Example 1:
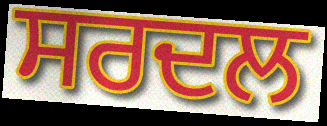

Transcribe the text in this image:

ਸਰਦਲ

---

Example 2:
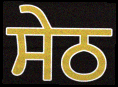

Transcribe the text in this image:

ਸੇਠ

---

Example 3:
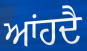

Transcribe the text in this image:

ਆਂਹਦੈ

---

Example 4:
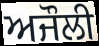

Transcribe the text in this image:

ਅਜੌਲੀ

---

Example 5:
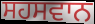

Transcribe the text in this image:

ਸਹਸਵਾਨ